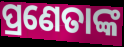
ପ୍ରଣେତାଙ୍କ